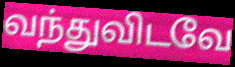
வந்துவிடவே